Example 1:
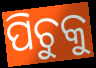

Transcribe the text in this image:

ପିଚୁକୁ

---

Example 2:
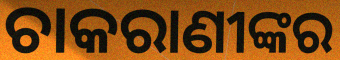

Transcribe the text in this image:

ଚାକରାଣୀଙ୍କର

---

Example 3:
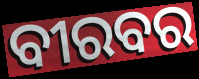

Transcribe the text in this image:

ବୀରବର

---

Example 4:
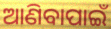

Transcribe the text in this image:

ଆଣିବାପାଇଁ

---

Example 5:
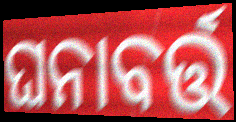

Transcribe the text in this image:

ଘନାବର୍ତ୍ତ